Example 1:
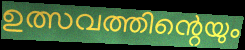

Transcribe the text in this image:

ഉത്സവത്തിന്റെയും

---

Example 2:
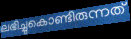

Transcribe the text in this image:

ലഭിച്ചുകൊണ്ടിരുന്നത്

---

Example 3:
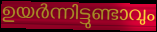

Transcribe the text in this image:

ഉയർന്നിട്ടുണ്ടാവും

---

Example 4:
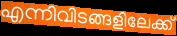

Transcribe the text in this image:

എന്നിവിടങ്ങളിലേക്ക്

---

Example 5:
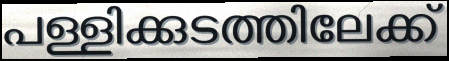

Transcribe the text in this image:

പള്ളിക്കുടത്തിലേക്ക്